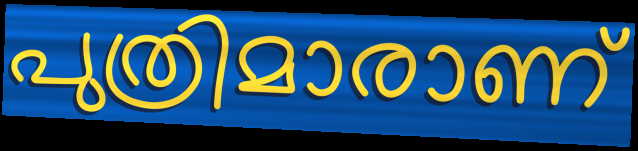
പുത്രിമാരാണ്